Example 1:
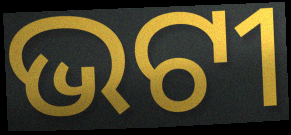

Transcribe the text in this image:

ଭଟୀ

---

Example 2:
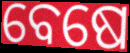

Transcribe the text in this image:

ବେଷେ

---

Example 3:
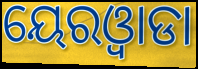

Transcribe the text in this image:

ୟେରଓ୍ୱାଡା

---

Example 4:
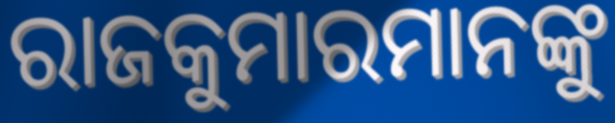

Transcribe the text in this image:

ରାଜକୁମାରମାନଙ୍କୁ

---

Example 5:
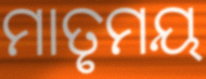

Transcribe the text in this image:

ମାତୃମୟ